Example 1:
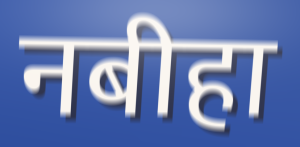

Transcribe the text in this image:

नबीहा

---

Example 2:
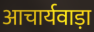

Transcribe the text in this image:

आचार्यवाड़ा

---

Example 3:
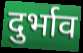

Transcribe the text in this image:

दुर्भाव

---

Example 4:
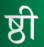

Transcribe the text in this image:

ष्ठी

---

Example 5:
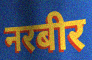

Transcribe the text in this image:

नरबीर